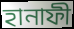
হানাফী